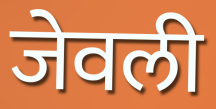
जेवली